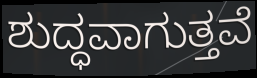
ಶುದ್ಧವಾಗುತ್ತವೆ